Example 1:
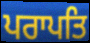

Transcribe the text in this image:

ਪਰਾਪਤਿ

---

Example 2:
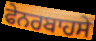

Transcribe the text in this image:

ਫੇਨਰਬਾਹਸੇ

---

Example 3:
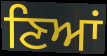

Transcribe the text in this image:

ਣਿਆਂ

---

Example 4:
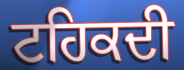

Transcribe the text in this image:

ਟਹਿਕਦੀ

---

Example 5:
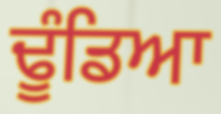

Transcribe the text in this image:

ਢੂੰਡਿਆ